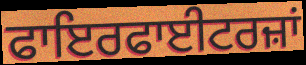
ਫਾਇਰਫਾਈਟਰਜ਼ਾਂ